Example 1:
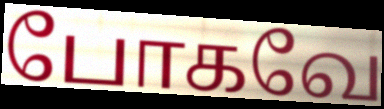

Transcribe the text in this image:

போகவே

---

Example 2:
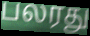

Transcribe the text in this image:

பலரது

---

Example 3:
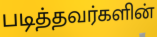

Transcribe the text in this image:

படித்தவர்களின்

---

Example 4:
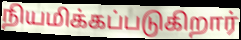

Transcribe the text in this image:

நியமிக்கப்படுகிறார்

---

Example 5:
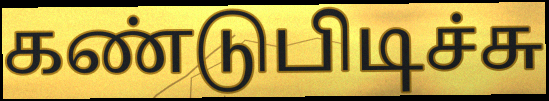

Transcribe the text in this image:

கண்டுபிடிச்சு